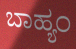
ಬಾಹ್ಯಂ